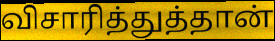
விசாரித்துத்தான்